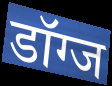
डॉग्ज